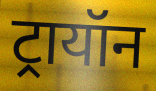
ट्रायॉन